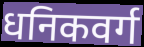
धनिकवर्ग